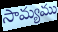
సామ్యము